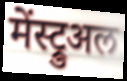
मेंस्ट्रुअल